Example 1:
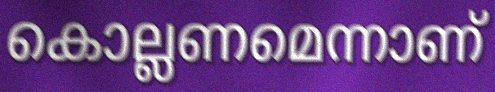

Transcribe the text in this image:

കൊല്ലണമെന്നാണ്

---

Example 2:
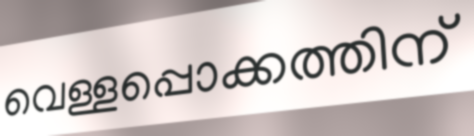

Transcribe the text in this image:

വെള്ളപ്പൊക്കത്തിന്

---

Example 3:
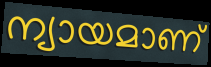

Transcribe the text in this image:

ന്യായമാണ്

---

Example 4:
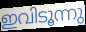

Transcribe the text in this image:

ഇവിടൂന്നു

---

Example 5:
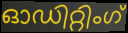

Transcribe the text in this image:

ഓഡിറ്റിംഗ്